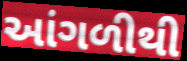
આંગળીથી